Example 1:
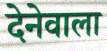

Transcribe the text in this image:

देनेवाला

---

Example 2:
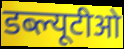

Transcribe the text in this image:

डब्ल्यूटीओ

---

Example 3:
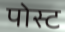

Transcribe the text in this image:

पोस्ट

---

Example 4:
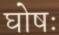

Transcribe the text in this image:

घोषः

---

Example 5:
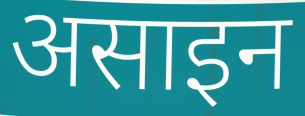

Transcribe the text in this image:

असाइन